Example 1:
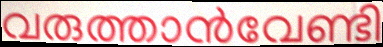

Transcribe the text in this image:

വരുത്താൻവേണ്ടി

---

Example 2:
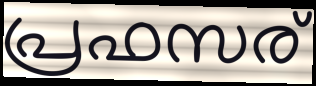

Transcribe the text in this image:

പ്രഫസര്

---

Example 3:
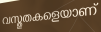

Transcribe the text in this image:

വസ്തുതകളെയാണ്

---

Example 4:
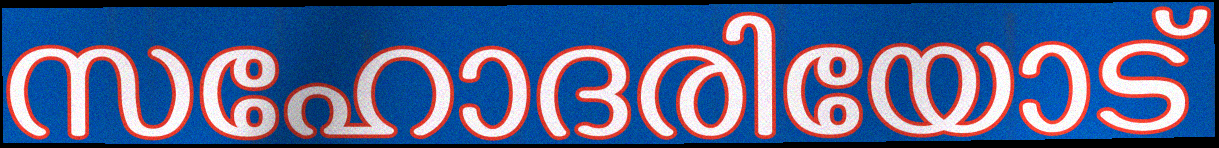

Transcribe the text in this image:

സഹോദരിയോട്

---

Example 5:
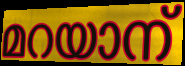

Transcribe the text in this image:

മറയാന്